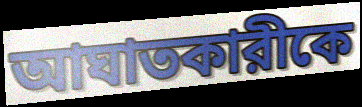
আঘাতকারীকে